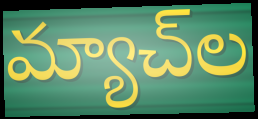
మ్యాచ్‌ల